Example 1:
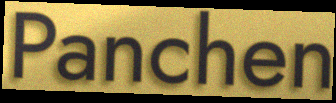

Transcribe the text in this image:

Panchen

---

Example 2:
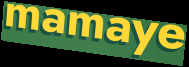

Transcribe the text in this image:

mamaye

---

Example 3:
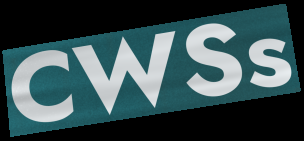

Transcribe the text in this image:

CWSs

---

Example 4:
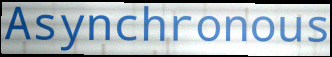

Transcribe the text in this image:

Asynchronous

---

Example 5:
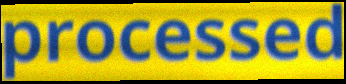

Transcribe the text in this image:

processed